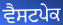
ਵੈਸਟਪੇਕ